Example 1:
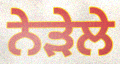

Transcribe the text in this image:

ਨੇੜੇਲੇ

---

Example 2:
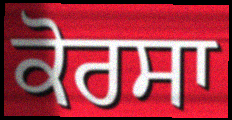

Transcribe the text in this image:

ਕੋਰਸਾ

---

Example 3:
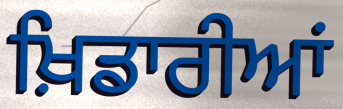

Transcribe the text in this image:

ਖ਼ਿਡਾਰੀਆਂ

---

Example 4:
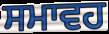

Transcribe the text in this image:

ਸਮਾਵਹ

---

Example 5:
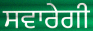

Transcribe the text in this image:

ਸਵਾਰੇਗੀ